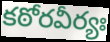
కఠోరవీర్యః